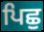
ਪਿਛੁ